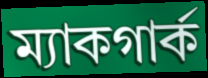
ম্যাকগার্ক